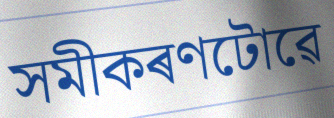
সমীকৰণটোৱে